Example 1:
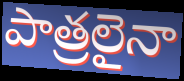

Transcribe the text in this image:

పాత్రలైనా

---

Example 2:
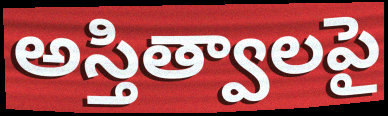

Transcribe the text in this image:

అస్తిత్వాలపై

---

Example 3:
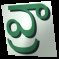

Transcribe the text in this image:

వ్రా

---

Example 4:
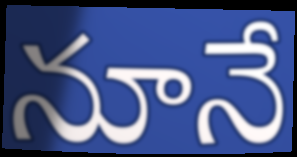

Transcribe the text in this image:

నూనే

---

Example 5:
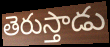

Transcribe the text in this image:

తెరుస్తాడు